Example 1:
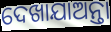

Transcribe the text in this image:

ଦେଖାଯାଅନ୍ତା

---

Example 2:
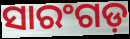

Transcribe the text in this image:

ସାରଂଗଡ଼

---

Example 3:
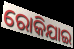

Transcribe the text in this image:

ରୋକିଯାଇ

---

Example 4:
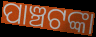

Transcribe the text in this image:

ପାଞ୍ଚଟଙ୍କା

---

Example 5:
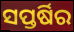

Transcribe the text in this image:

ସପ୍ତର୍ଷିର